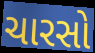
ચારસો